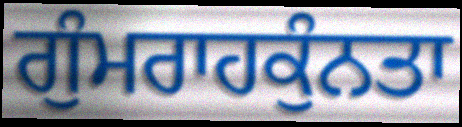
ਗੁੰਮਰਾਹਕੁੰਨਤਾ